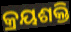
କ୍ରୟଶକ୍ତି